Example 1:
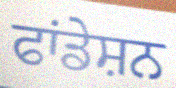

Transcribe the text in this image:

ਫਾਂਡੇਸ਼ਨ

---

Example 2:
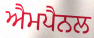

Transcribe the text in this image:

ਐਮਪੈਨਲ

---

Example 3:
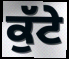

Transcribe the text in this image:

ਕੁੱਟੇ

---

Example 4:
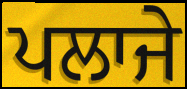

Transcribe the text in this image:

ਪਲਾਜੇ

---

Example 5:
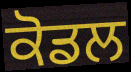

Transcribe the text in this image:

ਕੋਡਲ